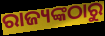
ରାଜ୍ୟଙ୍କଠାରୁ